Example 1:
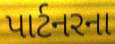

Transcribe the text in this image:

પાર્ટનરના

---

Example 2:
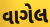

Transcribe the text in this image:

વાગેલ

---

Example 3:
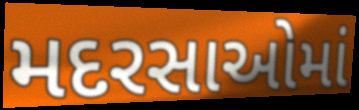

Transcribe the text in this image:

મદરસાઓમાં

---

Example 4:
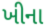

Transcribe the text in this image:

ખીના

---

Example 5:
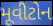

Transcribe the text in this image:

મૂવીટોન